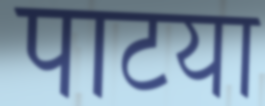
पाटया